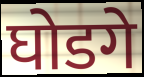
घोडगे